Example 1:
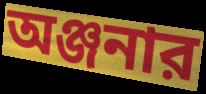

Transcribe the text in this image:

অঞ্জনার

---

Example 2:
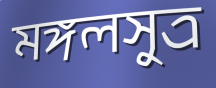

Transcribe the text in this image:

মঙ্গলসুত্র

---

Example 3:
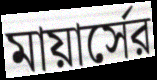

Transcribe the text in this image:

মায়ার্সের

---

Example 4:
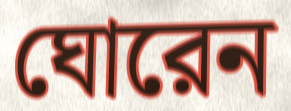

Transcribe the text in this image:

ঘোরেন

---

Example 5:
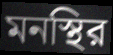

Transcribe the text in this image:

মনস্থির